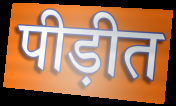
पीड़ीत